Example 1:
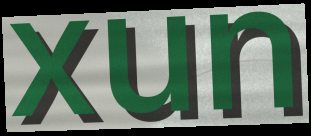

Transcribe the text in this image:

xun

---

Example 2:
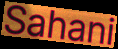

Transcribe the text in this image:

Sahani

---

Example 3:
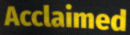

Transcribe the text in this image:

Acclaimed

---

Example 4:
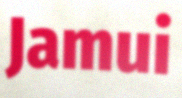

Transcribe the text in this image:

Jamui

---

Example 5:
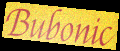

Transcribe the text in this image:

Bubonic